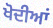
ਖੋਦੀਆਂ